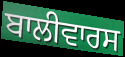
ਬਾਲੀਵਾਰਸ